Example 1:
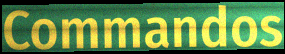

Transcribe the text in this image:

Commandos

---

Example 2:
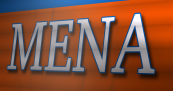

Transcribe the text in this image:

MENA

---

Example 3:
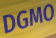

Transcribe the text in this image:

DGMO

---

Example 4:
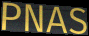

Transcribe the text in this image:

PNAS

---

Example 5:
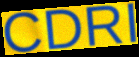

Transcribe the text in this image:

CDRI